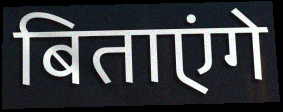
बिताएंगे